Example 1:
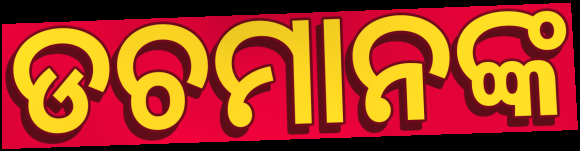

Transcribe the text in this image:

ଡଚମାନଙ୍କ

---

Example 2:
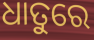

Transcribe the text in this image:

ଧାତୁରେ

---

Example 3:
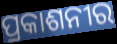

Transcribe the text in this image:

ପ୍ରକାଶନୀର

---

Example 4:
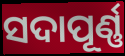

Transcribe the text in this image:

ସଦାପୂର୍ଣ୍ଣ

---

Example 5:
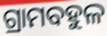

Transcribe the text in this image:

ଗ୍ରାମବହୁଳ